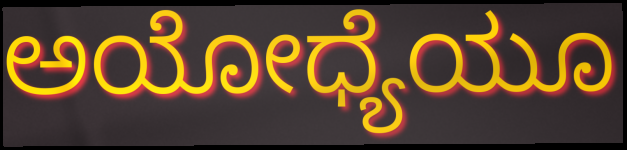
ಅಯೋಧ್ಯೆಯೂ